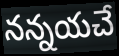
నన్నయచే